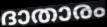
ദാതാരം